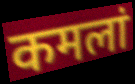
कमलां